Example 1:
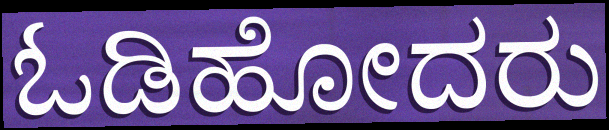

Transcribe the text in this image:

ಓಡಿಹೋದರು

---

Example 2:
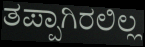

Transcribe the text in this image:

ತಪ್ಪಾಗಿರಲಿಲ್ಲ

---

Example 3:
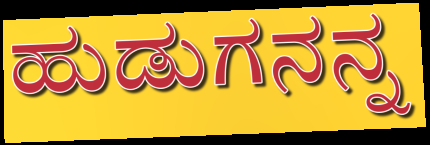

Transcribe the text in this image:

ಹುಡುಗನನ್ನ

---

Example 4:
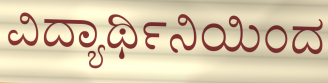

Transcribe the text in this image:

ವಿದ್ಯಾರ್ಥಿನಿಯಿಂದ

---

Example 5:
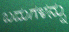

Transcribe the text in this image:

ಬದುಗಳನ್ನು